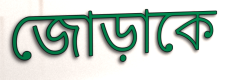
জোড়াকে